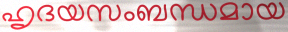
ഹൃദയസംബന്ധമായ